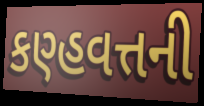
કણ્હવત્તની